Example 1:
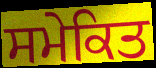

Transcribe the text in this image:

ਸਮੇਕਿਤ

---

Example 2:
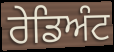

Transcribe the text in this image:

ਰੇਡਿਅੰਟ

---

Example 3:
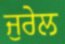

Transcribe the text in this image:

ਜੁਰੇਲ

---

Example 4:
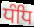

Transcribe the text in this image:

ਧੰਧਿ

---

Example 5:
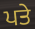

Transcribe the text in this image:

ਪਤੇ